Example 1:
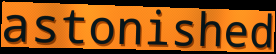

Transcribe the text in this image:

astonished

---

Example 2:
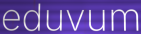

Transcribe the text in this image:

eduvum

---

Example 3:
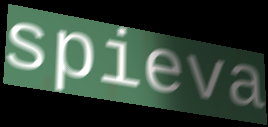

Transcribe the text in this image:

spieva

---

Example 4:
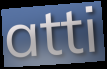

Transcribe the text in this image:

atti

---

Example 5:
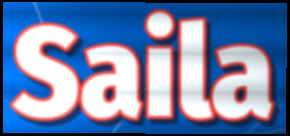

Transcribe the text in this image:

Saila